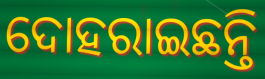
ଦୋହରାଇଛନ୍ତି